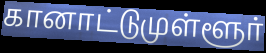
கானாட்டுமுள்ளூர்